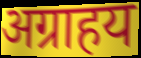
अग्राहय